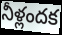
నీళ్లందక